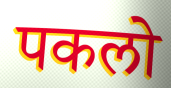
पकलो